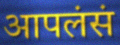
आपलंसं